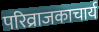
परिव्राजकाचार्य